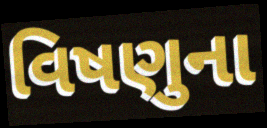
વિષણુના